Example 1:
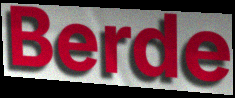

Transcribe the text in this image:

Berde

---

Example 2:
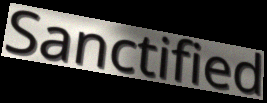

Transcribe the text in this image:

Sanctified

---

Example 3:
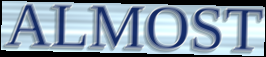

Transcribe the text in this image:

ALMOST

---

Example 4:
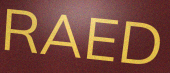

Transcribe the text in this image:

RAED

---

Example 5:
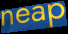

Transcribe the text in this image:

neap